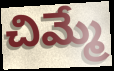
చిమ్మే